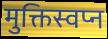
मुक्तिस्वप्न